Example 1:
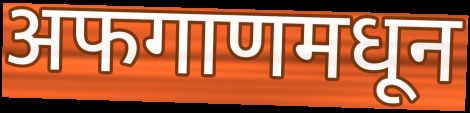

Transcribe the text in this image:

अफगाणमधून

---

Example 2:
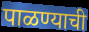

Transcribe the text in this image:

पाळण्याची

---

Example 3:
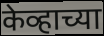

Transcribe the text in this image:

केव्हाच्या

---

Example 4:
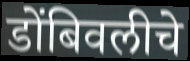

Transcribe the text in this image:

डोंबिवलीचे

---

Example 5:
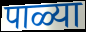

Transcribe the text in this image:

पाळ्या